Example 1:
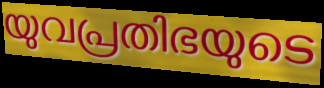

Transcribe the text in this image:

യുവപ്രതിഭയുടെ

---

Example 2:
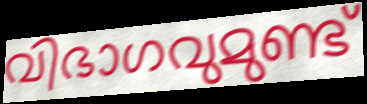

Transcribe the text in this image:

വിഭാഗവുമുണ്ട്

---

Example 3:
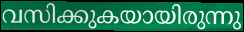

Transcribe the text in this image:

വസിക്കുകയായിരുന്നു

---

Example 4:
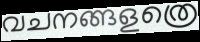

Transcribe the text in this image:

വചനങ്ങളത്രെ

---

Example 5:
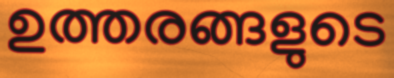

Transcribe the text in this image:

ഉത്തരങ്ങളുടെ